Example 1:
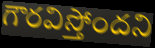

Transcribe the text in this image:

గౌరవిస్తోందని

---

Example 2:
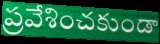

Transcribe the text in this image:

ప్రవేశించకుండా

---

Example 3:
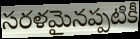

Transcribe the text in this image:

సరళమైనప్పటికీ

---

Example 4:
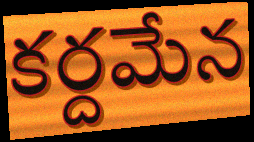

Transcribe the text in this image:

కర్దమేన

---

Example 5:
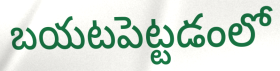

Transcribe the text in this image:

బయటపెట్టడంలో